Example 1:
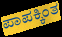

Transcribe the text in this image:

ಪಾಪಕ್ಕಿಂತ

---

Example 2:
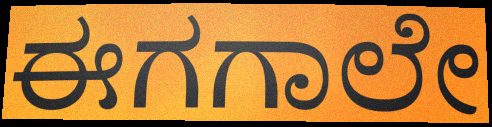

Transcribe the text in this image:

ಈಗಗಾಲೇ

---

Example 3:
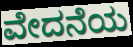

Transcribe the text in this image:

ವೇದನೆಯ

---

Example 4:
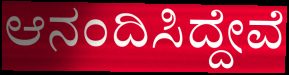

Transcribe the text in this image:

ಆನಂದಿಸಿದ್ದೇವೆ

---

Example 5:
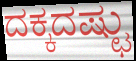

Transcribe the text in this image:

ದಕ್ಕದಷ್ಟು